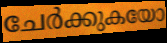
ചേർക്കുകയോ